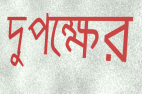
দুপক্ষের